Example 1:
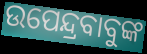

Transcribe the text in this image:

ଉପେନ୍ଦ୍ରବାବୁଙ୍କ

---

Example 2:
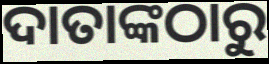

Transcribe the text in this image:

ଦାତାଙ୍କଠାରୁ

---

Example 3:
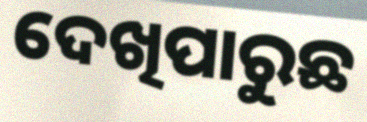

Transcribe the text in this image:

ଦେଖିପାରୁଛ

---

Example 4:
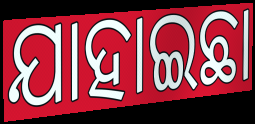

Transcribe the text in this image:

ଯାହାଇଛା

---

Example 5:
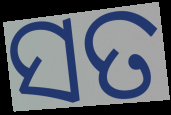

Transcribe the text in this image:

ସତ